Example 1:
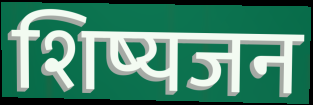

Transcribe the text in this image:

शिष्यजन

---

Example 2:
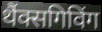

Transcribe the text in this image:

थैंक्सगिविंग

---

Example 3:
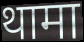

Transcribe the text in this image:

थामा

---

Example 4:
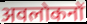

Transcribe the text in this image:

अवलोकनों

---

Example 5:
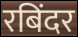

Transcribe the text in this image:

रबिंदर